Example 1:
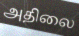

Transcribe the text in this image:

அதிலை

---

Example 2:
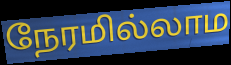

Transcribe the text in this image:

நேரமில்லாம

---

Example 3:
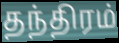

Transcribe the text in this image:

தந்திரம்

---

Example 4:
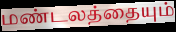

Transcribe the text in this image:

மண்டலத்தையும்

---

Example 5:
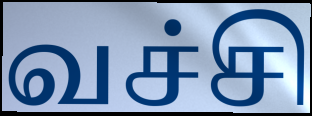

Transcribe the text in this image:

வச்சி